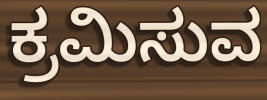
ಕ್ರಮಿಸುವ